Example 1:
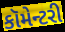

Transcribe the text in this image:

કૉમેન્ટરી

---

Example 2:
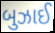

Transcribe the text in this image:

બુઝાઈ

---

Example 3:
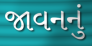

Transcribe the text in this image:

જાવનનું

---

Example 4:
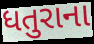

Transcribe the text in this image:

ધતુરાના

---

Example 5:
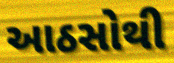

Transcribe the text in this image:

આઠસોથી